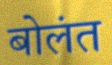
बोलंत